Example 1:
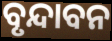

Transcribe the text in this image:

ବୃନ୍ଦାବନ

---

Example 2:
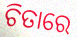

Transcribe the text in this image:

ଚିତାରେ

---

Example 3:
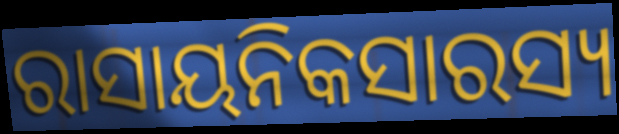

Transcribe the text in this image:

ରାସାୟନିକସାରସ୍ୟ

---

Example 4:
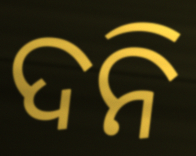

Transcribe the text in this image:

ଦନି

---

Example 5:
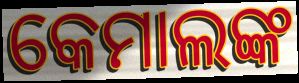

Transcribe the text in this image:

କେମାଲଙ୍କ